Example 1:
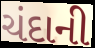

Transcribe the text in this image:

ચંદાની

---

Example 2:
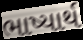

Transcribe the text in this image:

ભાષ્યાર્થ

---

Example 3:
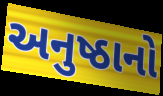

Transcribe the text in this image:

અનુષ્ઠાનો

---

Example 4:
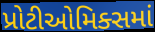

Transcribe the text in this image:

પ્રોટીઓમિક્સમાં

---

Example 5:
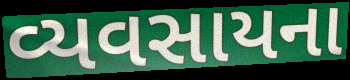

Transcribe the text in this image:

વ્યવસાયના